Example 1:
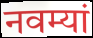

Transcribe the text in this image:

नवम्यां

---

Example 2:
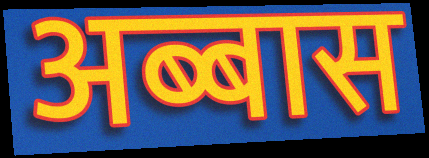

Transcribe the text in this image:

अब्बास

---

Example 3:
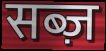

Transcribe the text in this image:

सब्ज़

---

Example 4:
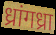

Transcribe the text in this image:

ध्रांगध्रा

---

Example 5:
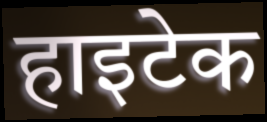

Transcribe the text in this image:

हाइटेक